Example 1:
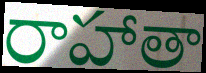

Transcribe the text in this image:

రాహాతా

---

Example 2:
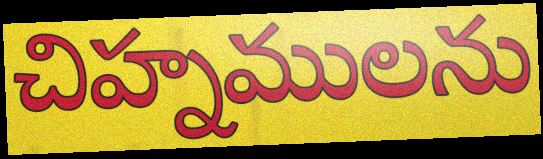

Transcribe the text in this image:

చిహ్నములను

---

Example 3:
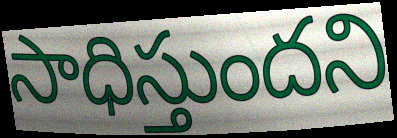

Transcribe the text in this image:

సాధిస్తుందని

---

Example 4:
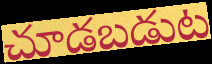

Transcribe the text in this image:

చూడబడుట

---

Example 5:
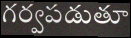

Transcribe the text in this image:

గర్వపడుతూ